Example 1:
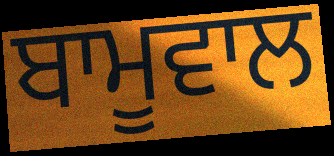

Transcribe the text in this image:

ਬਾਮੂਵਾਲ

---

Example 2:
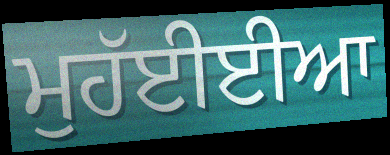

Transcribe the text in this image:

ਮੁਹੱਈਈਆ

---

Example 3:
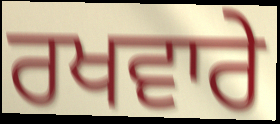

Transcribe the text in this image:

ਰਖਵਾਰੇ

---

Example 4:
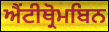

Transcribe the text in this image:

ਐਂਟੀਥ੍ਰੋਮਬਿਨ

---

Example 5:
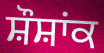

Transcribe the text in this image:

ਸ਼ੌਸ਼ਾਂਕ